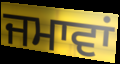
ਜਮਾਵਾਂ